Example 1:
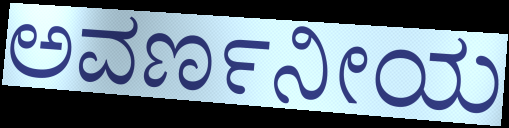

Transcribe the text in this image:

ಅವರ್ಣನೀಯ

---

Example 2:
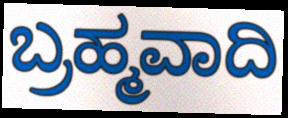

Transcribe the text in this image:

ಬ್ರಹ್ಮವಾದಿ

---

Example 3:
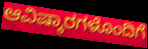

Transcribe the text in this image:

ಆವಿಷ್ಕಾರಗಳೊಂದಿಗೆ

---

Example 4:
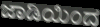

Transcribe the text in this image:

ಜಾಡಿಯಿಂದ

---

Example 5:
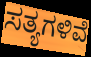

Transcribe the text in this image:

ಸತ್ಯಗಳಿವೆ